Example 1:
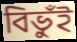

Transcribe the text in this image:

বিভুঁই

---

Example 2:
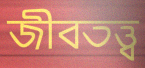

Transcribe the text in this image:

জীবতত্ত্ব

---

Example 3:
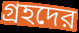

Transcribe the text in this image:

গ্রহদের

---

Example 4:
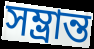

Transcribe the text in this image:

সম্ভ্রান্ত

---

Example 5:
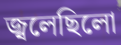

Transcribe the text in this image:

জ্বলেছিলো